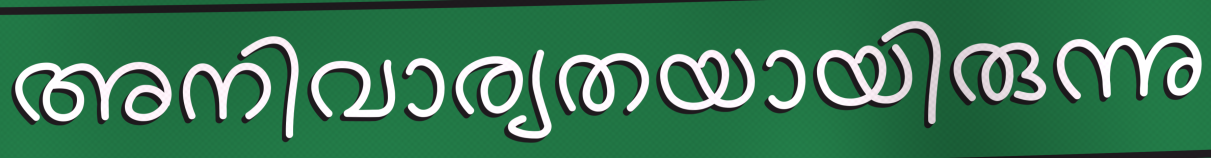
അനിവാര്യതയായിരുന്നു